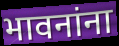
भावनांना